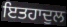
ਇਤਹਾਦੁਲ